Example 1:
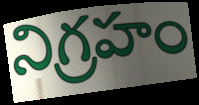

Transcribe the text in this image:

నిగ్రహం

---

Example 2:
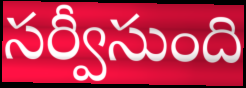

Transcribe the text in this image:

సర్వీసుంది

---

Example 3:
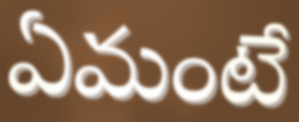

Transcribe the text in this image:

ఏమంటే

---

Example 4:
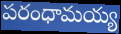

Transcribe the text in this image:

పరంధామయ్య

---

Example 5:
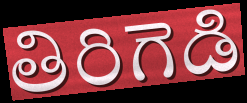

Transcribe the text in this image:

తిరిగెడి